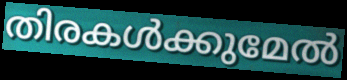
തിരകൾക്കുമേൽ